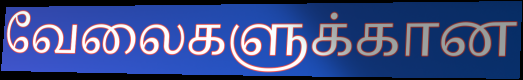
வேலைகளுக்கான